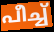
പീച്ച്